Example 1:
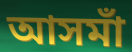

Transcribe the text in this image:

আসমাঁ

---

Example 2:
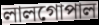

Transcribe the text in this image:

লালগোপাল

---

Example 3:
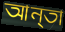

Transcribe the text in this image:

আন্‌তা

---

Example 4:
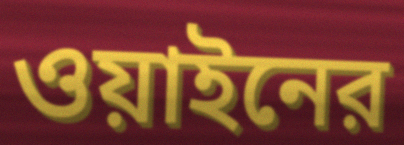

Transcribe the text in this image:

ওয়াইনের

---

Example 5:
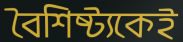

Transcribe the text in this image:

বৈশিষ্ট্যকেই